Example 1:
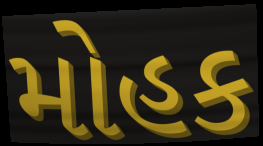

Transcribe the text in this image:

મોહક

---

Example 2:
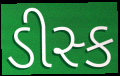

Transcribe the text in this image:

ડીસ્ક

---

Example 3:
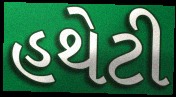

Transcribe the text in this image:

હથેટી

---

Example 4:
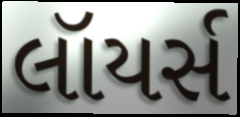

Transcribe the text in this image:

લૉયર્સ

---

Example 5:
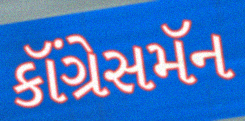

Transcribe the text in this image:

કૉંગ્રેસમૅન